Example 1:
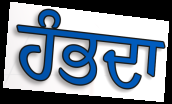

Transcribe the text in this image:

ਹੰਭਦਾ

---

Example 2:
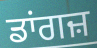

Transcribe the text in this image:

ਡਾਂਗਜ਼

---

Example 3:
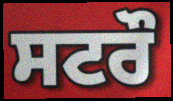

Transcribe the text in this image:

ਸਟਰੌ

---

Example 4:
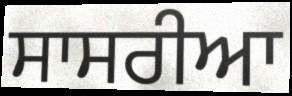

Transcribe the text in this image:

ਸਾਸਰੀਆ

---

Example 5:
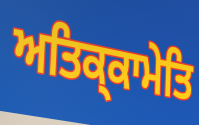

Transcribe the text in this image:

ਅਤਿਕ੍ਕਾਮੇਤਿ